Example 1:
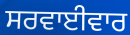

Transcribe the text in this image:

ਸਰਵਾਈਵਾਰ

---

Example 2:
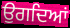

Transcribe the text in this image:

ਉਗਦਿਆਂ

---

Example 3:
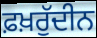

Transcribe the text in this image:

ਫ਼ਖ਼ਰੁੱਦੀਨ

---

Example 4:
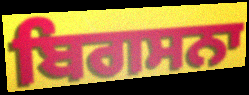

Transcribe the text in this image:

ਬਿਗਸਨਾ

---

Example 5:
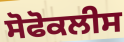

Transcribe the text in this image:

ਸੋਫੋਕਲੀਸ